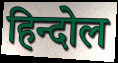
हिन्दोल